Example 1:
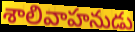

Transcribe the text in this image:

శాలివాహనుడు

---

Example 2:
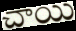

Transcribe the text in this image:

చాయి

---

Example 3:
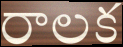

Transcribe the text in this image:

రాలక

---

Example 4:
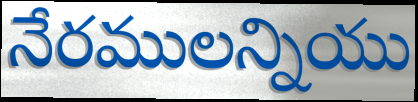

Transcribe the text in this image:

నేరములన్నియు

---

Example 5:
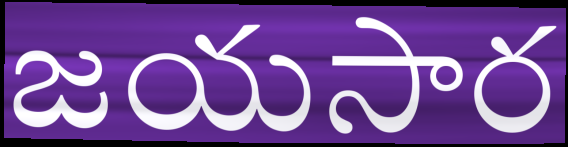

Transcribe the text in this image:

జయసార